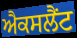
ਐਕਸਲੈਂਟ